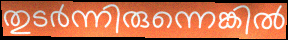
തുടർന്നിരുന്നെങ്കിൽ